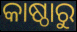
କାଷ୍ଠାରୁ